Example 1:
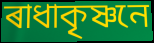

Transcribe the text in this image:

ৰাধাকৃষ্ণনে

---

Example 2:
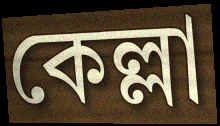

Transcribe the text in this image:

কেল্লা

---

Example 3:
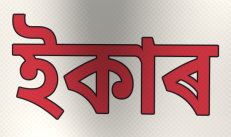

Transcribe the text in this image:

ইকাৰ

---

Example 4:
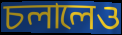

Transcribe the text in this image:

চলালেও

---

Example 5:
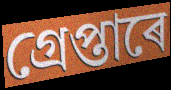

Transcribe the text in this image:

গ্ৰেপ্তাৰে